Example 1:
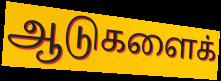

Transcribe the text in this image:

ஆடுகளைக்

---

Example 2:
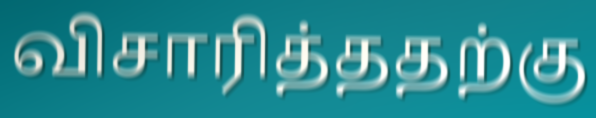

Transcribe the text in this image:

விசாரித்ததற்கு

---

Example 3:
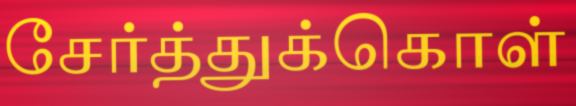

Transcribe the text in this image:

சேர்த்துக்கொள்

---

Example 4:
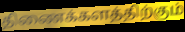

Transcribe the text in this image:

திணைக்களத்திற்கும்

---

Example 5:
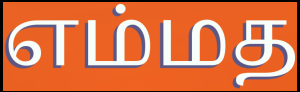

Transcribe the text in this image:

எம்மத